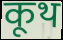
कूथ